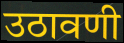
उठावणी